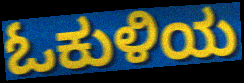
ಓಕುಳಿಯ